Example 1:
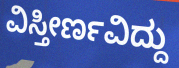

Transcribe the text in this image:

ವಿಸ್ತೀರ್ಣವಿದ್ದು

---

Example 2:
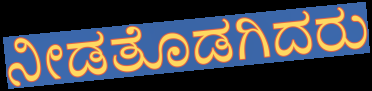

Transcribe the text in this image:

ನೀಡತೊಡಗಿದರು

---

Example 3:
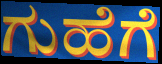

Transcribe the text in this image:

ಗುಹೆಗೆ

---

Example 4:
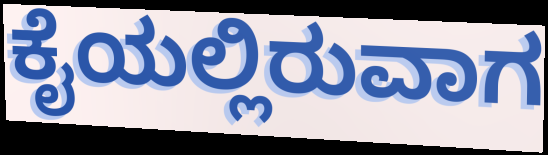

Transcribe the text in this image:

ಕೈಯಲ್ಲಿರುವಾಗ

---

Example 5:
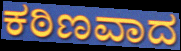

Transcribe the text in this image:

ಕಠಿಣವಾದ